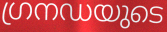
ഗ്രനഡയുടെ